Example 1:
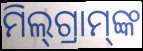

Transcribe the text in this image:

ମିଲ୍‌ଗ୍ରାମ୍‌ଙ୍କ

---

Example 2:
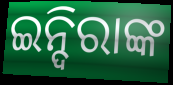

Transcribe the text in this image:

ଇନ୍ଦିରାଙ୍କ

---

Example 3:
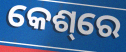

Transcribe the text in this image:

କେଶ୍‌ରେ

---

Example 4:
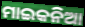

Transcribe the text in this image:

ମାଇକନିଆ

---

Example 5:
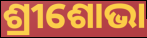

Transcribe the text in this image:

ଶ୍ରୀଶୋଭା